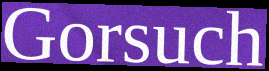
Gorsuch